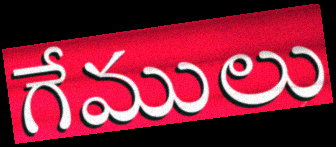
గేములు